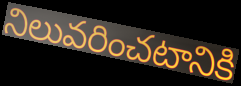
నిలువరించటానికి